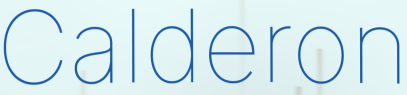
Calderon